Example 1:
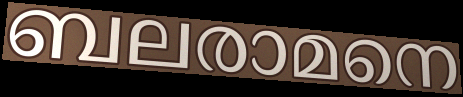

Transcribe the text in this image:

ബലരാമനെ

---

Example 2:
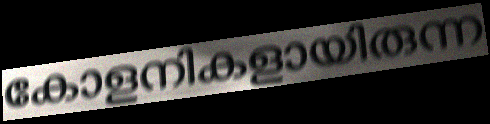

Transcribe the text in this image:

കോളനികളായിരുന്ന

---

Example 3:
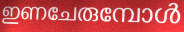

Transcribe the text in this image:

ഇണചേരുമ്പോൾ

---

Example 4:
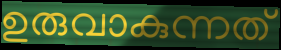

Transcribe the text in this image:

ഉരുവാകുന്നത്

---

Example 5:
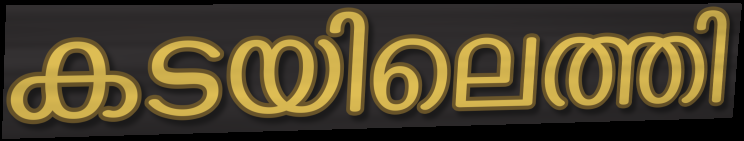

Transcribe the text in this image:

കടയിലെത്തി